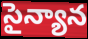
సైన్యాన